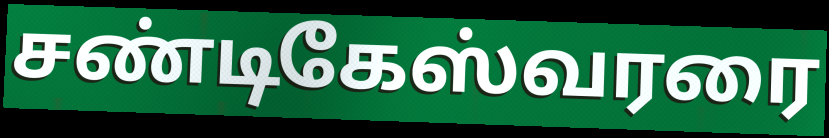
சண்டிகேஸ்வரரை